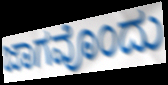
ಜಾಗವೊಂದು